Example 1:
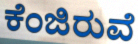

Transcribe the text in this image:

ಕೆಂಜಿರುವೆ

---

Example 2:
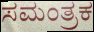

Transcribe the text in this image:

ಸಮಂತ್ರಕ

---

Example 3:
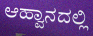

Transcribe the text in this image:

ಆಹ್ವಾನದಲ್ಲಿ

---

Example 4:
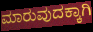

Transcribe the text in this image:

ಮಾರುವುದಕ್ಕಾಗಿ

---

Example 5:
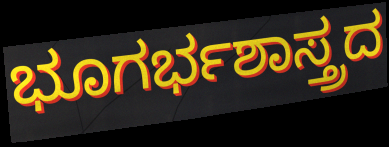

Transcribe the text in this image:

ಭೂಗರ್ಭಶಾಸ್ತ್ರದ